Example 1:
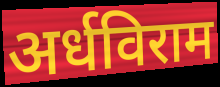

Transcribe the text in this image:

अर्धविराम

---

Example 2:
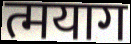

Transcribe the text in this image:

त्मयाग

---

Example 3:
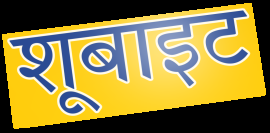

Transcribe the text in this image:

शूबाइट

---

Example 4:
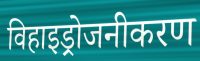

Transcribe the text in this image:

विहाइड्रोजनीकरण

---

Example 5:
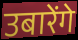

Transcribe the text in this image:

उबारेंगे